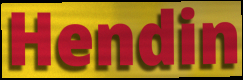
Hendin